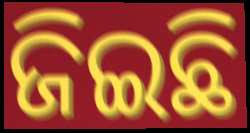
ଜିଇଛି